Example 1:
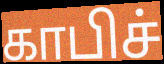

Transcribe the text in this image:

காபிச்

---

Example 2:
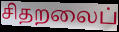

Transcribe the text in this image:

சிதறலைப்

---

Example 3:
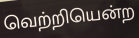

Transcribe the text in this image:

வெற்றியென்ற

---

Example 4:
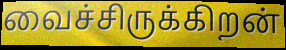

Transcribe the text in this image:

வைச்சிருக்கிறன்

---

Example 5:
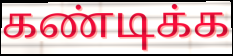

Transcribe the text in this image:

கண்டிக்க